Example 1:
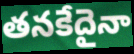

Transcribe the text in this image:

తనకేదైనా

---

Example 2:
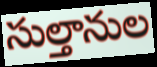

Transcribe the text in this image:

సుల్తానుల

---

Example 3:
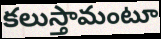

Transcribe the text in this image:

కలుస్తామంటూ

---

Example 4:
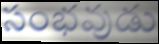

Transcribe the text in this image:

సంభవుడు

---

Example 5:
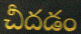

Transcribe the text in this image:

చీదడం